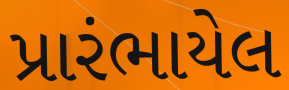
પ્રારંભાયેલ